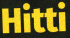
Hitti